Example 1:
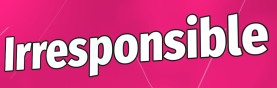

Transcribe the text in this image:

Irresponsible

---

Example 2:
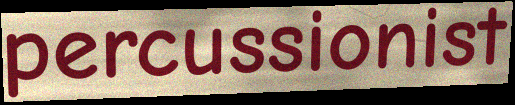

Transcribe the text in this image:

percussionist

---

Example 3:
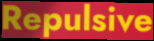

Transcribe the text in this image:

Repulsive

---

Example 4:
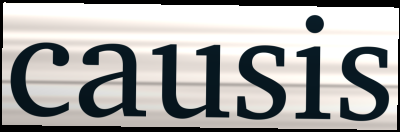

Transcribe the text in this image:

causis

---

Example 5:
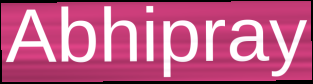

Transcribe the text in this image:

Abhipray